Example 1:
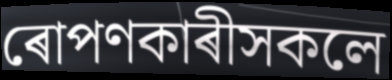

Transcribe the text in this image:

ৰোপণকাৰীসকলে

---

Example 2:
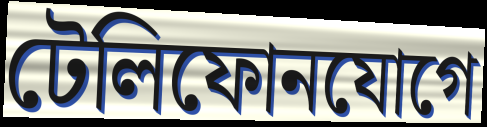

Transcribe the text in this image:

টেলিফোনযোগে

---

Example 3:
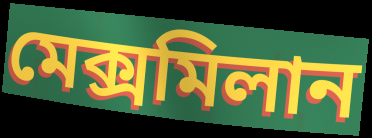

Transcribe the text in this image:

মেক্সমিলান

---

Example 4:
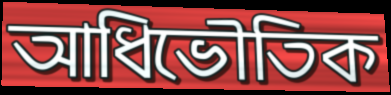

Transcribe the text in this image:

আধিভৌতিক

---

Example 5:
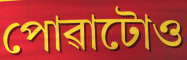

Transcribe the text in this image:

পোৱাটোও